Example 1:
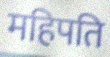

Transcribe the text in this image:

महिपति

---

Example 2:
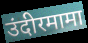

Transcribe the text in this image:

उंदीरमामा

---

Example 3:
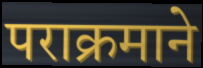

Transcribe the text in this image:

पराक्रमाने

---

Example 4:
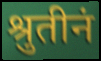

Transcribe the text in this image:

श्रुतीनं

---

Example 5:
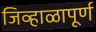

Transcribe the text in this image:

जिव्हाळापूर्ण